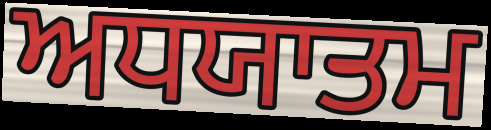
ਅਧਯਾਤਮ